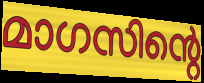
മാഗസിന്റെ